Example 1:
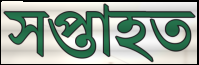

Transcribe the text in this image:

সপ্তাহত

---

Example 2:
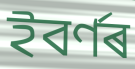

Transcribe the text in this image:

ইবৰ্ণৰ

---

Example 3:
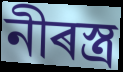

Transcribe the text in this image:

নীৰস্ত্ৰ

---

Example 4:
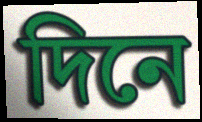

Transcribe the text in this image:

দিনে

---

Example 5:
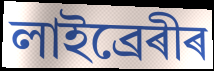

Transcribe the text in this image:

লাইব্ৰেৰীৰ